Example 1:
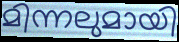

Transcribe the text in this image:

മിന്നലുമായി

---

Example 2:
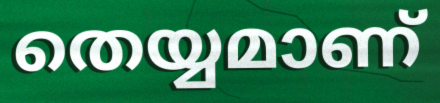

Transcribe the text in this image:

തെയ്യമാണ്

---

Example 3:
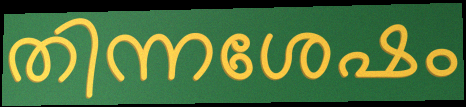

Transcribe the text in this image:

തിന്നശേഷം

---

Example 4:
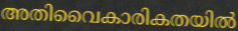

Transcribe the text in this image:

അതിവൈകാരികതയിൽ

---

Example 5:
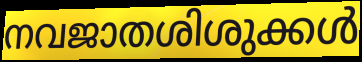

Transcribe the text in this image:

നവജാതശിശുക്കൾ